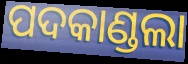
ପଦକାଣ୍ଡଲା